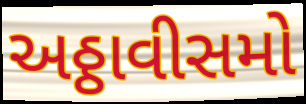
અઠ્ઠાવીસમો